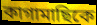
কাগামাছিকে